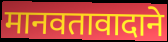
मानवतावादाने